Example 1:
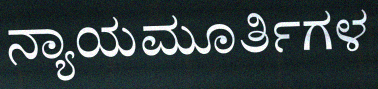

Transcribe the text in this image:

ನ್ಯಾಯಮೂರ್ತಿಗಳ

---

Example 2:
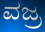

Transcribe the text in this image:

ವಜ್ರ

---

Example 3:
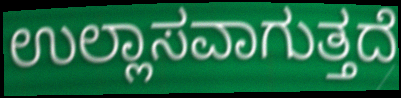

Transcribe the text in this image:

ಉಲ್ಲಾಸವಾಗುತ್ತದೆ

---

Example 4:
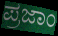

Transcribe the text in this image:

ಪ್ರಜಾಂ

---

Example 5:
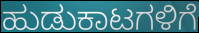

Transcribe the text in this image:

ಹುಡುಕಾಟಗಳಿಗೆ